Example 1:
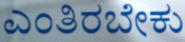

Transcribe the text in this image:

ಎಂತಿರಬೇಕು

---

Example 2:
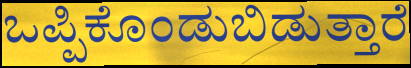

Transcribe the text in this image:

ಒಪ್ಪಿಕೊಂಡುಬಿಡುತ್ತಾರೆ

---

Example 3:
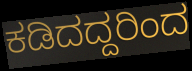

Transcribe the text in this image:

ಕಡಿದದ್ದರಿಂದ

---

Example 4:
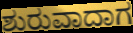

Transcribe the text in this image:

ಶುರುವಾದಾಗ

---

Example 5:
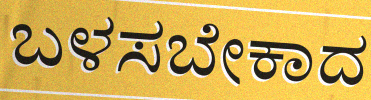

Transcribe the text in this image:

ಬಳಸಬೇಕಾದ